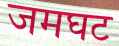
जमघट